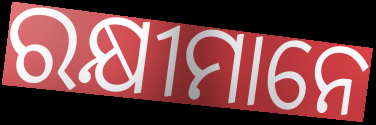
ରକ୍ଷୀମାନେ